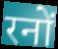
रनों